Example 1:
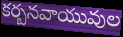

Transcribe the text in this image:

కర్బనవాయువుల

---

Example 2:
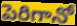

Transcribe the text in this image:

పెరిగానో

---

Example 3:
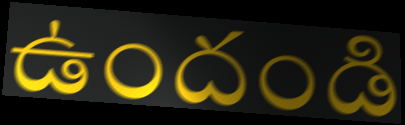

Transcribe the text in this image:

ఉందండి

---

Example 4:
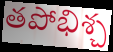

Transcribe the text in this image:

తపోభిశ్చ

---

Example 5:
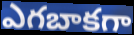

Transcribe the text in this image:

ఎగబాకగా